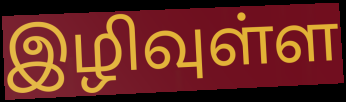
இழிவுள்ள